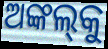
ଅଙ୍କଲ୍‌କୁ